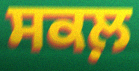
ਸਕਲ਼